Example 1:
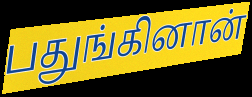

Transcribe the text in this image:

பதுங்கினான்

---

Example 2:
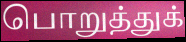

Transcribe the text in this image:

பொறுத்துக்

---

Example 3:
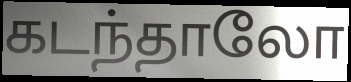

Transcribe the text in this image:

கடந்தாலோ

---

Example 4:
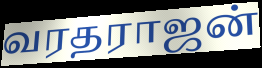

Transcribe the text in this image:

வரதராஜன்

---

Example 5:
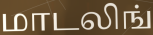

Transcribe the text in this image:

மாடலிங்